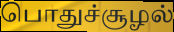
பொதுச்சூழல்